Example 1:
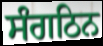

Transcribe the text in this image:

ਸੰਗਠਿਨ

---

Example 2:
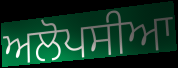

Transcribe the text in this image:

ਅਲੋਪਸੀਆ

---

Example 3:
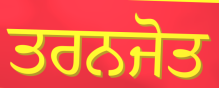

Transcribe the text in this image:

ਤਰਨਜੋਤ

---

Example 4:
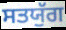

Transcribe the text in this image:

ਸਤਯੁੱਗ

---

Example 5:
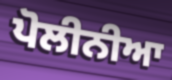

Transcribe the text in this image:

ਪੋਲੀਨੀਆ